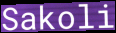
Sakoli